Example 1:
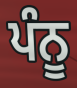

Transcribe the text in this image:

ਪੰਨੂ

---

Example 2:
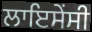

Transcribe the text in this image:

ਲਾਇਸੇਂਸੀ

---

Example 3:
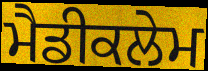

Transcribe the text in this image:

ਮੈਡੀਕਲੇਮ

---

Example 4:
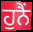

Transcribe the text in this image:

ਹੁਨੈਂ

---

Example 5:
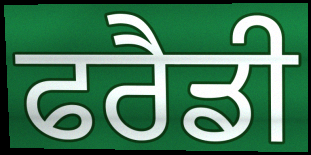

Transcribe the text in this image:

ਫਰੈਡੀ